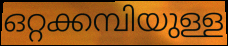
ഒറ്റക്കമ്പിയുള്ള